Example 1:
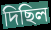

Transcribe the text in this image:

দিছিল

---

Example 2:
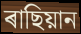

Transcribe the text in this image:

ৰাছিয়ান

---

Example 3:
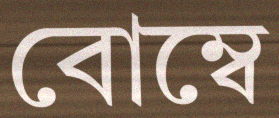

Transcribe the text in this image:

বোম্বে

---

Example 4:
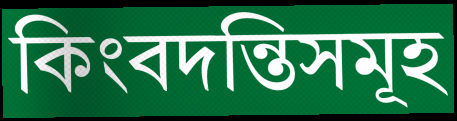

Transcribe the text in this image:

কিংবদন্তিসমূহ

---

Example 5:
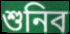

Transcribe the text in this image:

শুনিব